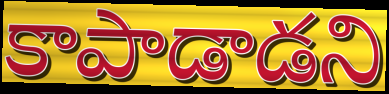
కాపాడాడని